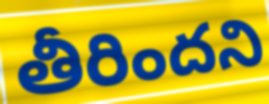
తీరిందని